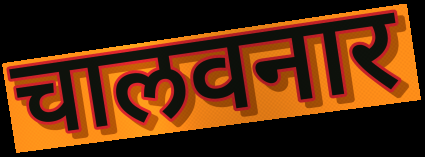
चालवनार